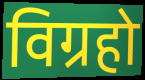
विग्रहो